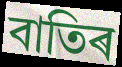
বাতিৰ